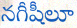
నగీషీలూ